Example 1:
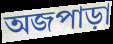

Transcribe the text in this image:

অজপাড়া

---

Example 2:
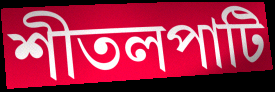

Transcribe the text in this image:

শীতলপাটি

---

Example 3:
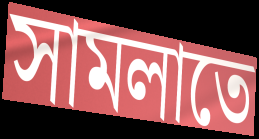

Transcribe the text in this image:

সামলাতে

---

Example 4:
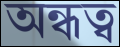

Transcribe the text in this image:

অন্ধত্ব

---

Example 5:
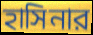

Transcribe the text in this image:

হাসিনার